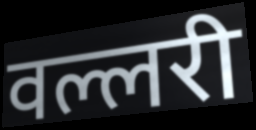
वल्लरी